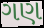
ગણ